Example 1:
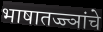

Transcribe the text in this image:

भाषातज्ज्ञांचे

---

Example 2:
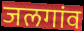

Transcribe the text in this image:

जलगांव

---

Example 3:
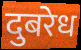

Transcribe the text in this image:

दुबरेध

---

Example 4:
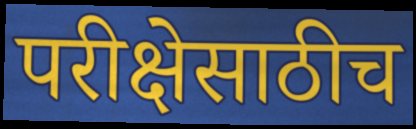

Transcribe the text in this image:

परीक्षेसाठीच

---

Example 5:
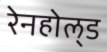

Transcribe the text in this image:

रेनहोल्ड